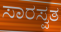
ಸಾರಸ್ವತ